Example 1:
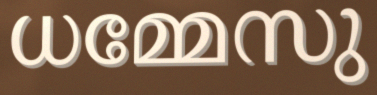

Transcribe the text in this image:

ധമ്മേസു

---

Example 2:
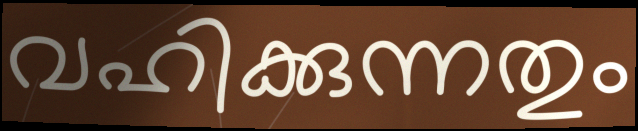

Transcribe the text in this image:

വഹിക്കുന്നതും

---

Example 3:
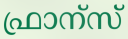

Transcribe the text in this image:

ഫ്രാന്സ്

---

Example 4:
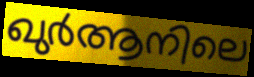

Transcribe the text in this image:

ഖുർആനിലെ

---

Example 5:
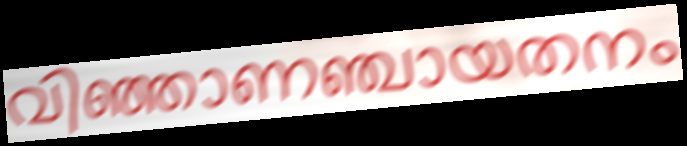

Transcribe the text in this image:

വിഞ്ഞാണഞ്ചായതനം